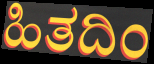
ಹಿತದಿಂ